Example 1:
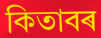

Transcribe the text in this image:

কিতাবৰ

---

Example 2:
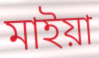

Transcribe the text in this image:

মাইয়া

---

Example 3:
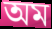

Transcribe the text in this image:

অম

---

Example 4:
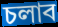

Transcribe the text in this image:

চলাব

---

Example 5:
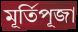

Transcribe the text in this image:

মূৰ্তিপূজা